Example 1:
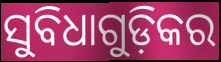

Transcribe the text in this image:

ସୁବିଧାଗୁଡ଼ିକର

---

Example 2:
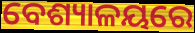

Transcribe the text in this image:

ବେଶ୍ୟାଳୟରେ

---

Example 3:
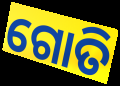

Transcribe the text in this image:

ଗୋତି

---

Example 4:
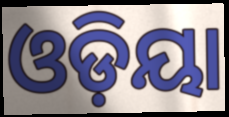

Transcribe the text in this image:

ଓଡ଼ିୟା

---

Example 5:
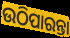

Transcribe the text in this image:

ଉଠିପାରନ୍ତା